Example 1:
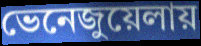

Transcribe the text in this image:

ভেনেজুয়েলায়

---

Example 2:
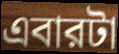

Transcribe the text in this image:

এবারটা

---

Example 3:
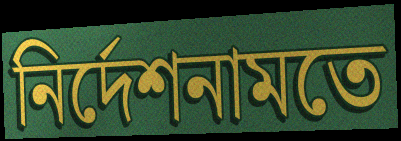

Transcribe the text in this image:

নির্দেশনামতে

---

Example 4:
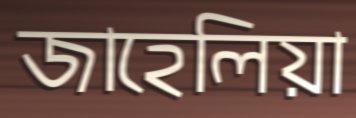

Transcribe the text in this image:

জাহেলিয়া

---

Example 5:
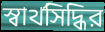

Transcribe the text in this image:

স্বার্থসিদ্ধির